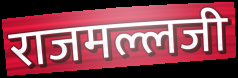
राजमल्लजी